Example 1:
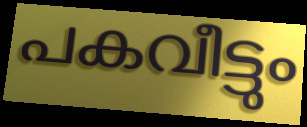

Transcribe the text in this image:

പകവീട്ടും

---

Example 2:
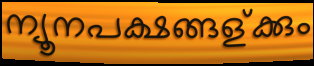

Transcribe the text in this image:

ന്യൂനപക്ഷങ്ങള്ക്കും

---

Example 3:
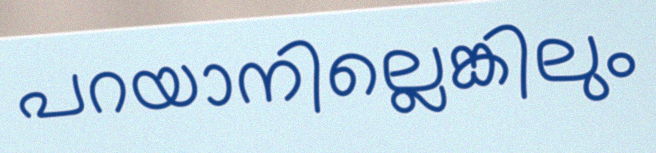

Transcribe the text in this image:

പറയാനില്ലെങ്കിലും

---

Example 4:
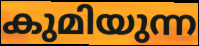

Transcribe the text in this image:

കുമിയുന്ന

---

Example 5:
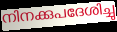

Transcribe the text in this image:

നിനക്കുപദേശിച്ചു